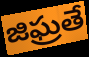
జిఘ్రతే